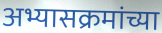
अभ्यासक्रमांच्या